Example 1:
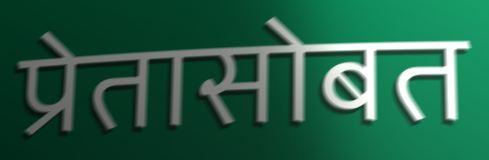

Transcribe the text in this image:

प्रेतासोबत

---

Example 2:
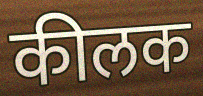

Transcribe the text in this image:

कीलक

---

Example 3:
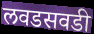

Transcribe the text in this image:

लवडसवडी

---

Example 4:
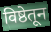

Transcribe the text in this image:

विष्ठेतून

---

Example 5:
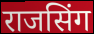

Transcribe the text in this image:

राजसिंग